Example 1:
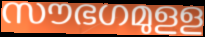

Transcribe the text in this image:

സൗഭഗമുളള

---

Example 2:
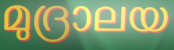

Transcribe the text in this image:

മുദ്രാലയ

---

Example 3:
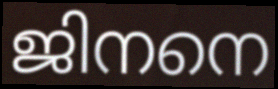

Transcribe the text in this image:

ജിനനെ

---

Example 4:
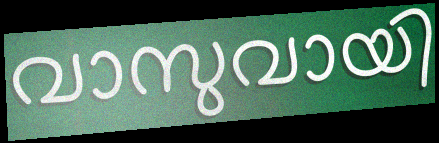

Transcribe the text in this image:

വാസുവായി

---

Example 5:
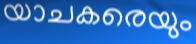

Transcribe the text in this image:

യാചകരെയും